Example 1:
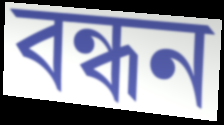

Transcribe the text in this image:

বন্ধন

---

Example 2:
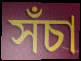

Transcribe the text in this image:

সঁচা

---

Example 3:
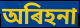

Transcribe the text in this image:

অৰিহনা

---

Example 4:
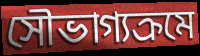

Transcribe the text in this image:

সৌভাগ্যক্ৰমে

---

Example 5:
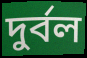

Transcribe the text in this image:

দুৰ্বল